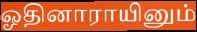
ஓதினாராயினும்